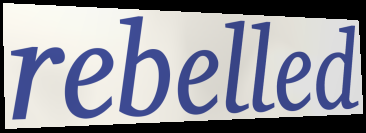
rebelled